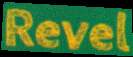
Revel